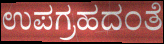
ಉಪಗ್ರಹದಂತೆ